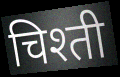
चिश्ती